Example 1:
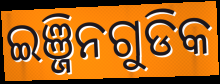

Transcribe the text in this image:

ଇଞ୍ଜିନଗୁଡିକ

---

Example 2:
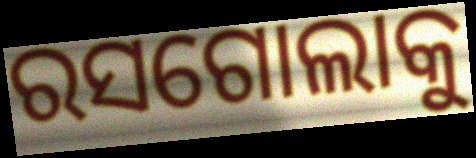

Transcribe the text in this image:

ରସଗୋଲାକୁ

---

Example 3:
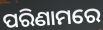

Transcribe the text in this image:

ପରିଣାମରେ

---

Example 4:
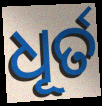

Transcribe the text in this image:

ଧୂର୍ତ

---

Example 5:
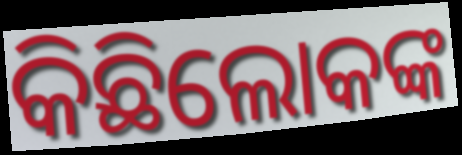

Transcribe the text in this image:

କିଛିଲୋକଙ୍କ